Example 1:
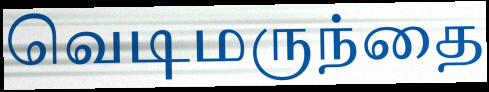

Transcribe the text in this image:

வெடிமருந்தை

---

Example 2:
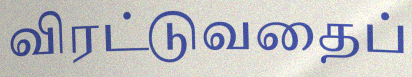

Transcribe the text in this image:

விரட்டுவதைப்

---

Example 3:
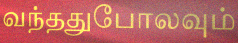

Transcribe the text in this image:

வந்ததுபோலவும்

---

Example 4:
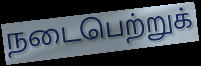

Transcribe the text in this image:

நடைபெற்றுக்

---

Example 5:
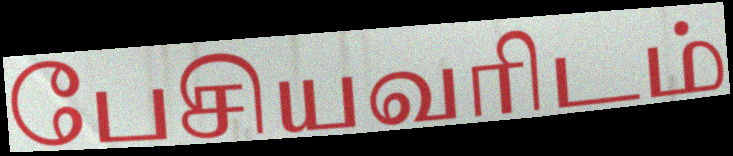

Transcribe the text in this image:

பேசியவரிடம்